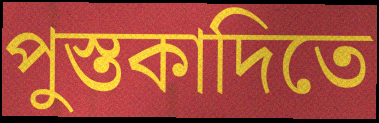
পুস্তকাদিতে